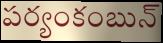
పర్యంకంబున్